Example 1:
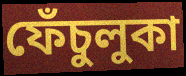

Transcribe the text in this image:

ফেঁচুলুকা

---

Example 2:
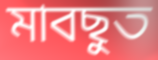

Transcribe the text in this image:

মাবছুত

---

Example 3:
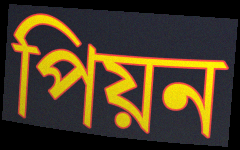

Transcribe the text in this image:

পিয়ন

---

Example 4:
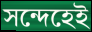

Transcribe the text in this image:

সন্দেহেই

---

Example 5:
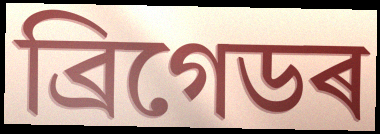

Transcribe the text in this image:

ব্ৰিগেডৰ